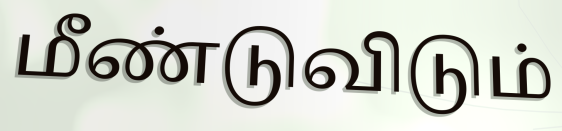
மீண்டுவிடும்